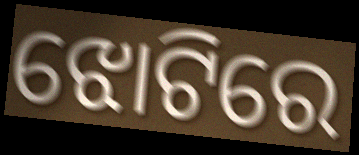
ଝୋଟିରେ